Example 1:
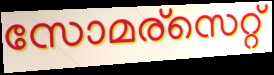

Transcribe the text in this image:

സോമര്സെറ്റ്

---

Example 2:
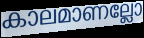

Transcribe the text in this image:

കാലമാണല്ലോ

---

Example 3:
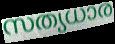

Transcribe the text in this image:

സത്യധാര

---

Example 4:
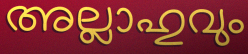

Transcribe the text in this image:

അല്ലാഹുവും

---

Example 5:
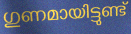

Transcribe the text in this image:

ഗുണമായിട്ടുണ്ട്